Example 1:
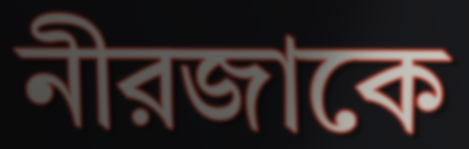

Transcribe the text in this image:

নীরজাকে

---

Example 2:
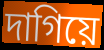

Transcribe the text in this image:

দাগিয়ে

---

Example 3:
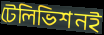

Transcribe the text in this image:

টেলিভিশনই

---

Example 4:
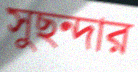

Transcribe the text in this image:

সুছন্দার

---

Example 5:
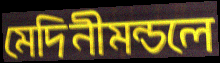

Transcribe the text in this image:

মেদিনীমন্ডলে